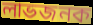
লাভজনক